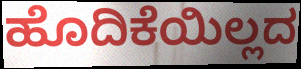
ಹೊದಿಕೆಯಿಲ್ಲದ